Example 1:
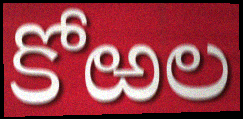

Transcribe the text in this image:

కోఱల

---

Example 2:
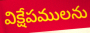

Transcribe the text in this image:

విక్షేపములను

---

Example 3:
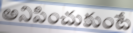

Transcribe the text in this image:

అనిపించుకుంటే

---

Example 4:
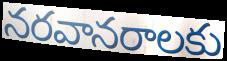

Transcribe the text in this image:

నరవానరాలకు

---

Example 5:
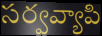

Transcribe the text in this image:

సర్వవ్యాపి